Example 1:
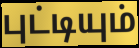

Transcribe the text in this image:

புட்டியும்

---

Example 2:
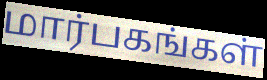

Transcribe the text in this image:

மார்பகங்கள்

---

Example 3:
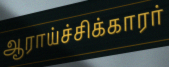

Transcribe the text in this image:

ஆராய்ச்சிக்காரர்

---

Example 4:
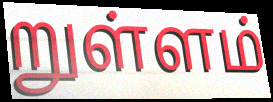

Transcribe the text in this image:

றுள்ளம்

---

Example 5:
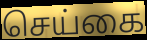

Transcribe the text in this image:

செய்கை